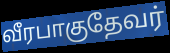
வீரபாகுதேவர்